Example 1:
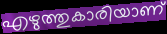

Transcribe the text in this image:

എഴുത്തുകാരിയാണ്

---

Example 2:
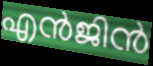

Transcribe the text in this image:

എൻജിൻ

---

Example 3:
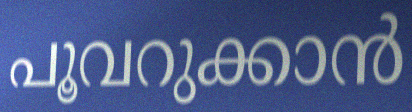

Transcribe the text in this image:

പൂവറുക്കാൻ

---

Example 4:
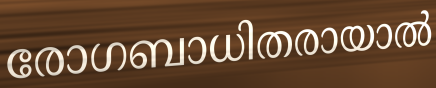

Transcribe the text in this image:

രോഗബാധിതരായാൽ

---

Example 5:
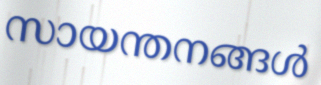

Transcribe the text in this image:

സായന്തനങ്ങൾ